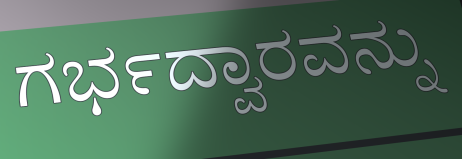
ಗರ್ಭದ್ವಾರವನ್ನು